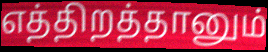
எத்திறத்தானும்